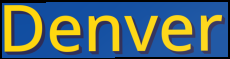
Denver